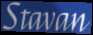
Stavan